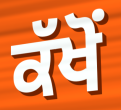
ਕੱਖੋਂ